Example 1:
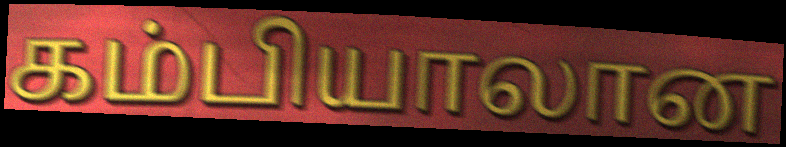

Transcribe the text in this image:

கம்பியாலான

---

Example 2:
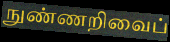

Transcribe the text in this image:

நுண்ணறிவைப்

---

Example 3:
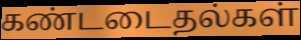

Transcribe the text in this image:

கண்டடைதல்கள்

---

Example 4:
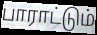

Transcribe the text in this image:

பாராட்டும்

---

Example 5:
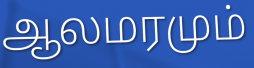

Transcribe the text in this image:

ஆலமரமும்